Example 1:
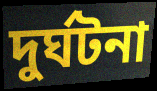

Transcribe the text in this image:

দুৰ্ঘটনা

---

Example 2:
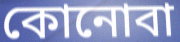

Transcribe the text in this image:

কোনোবা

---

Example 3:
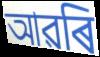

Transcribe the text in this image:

আৱৰি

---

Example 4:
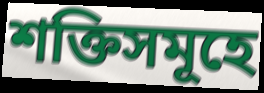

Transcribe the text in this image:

শক্তিসমূহে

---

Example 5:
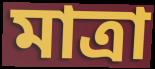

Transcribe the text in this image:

মাত্ৰা